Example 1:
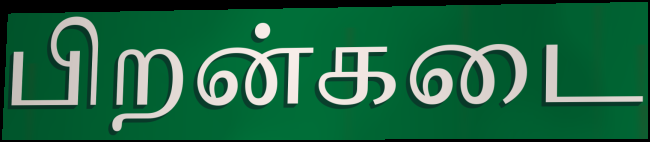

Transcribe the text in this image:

பிறன்கடை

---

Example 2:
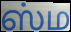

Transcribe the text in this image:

ஸ்ம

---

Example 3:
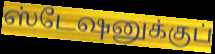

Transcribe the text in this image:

ஸ்டேஷனுக்குப்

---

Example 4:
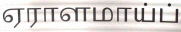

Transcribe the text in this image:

ஏராளமாய்ப்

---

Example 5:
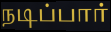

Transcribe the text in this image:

நடிப்பார்